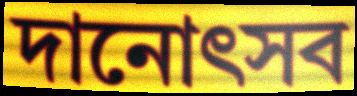
দানোৎসব